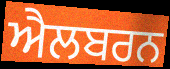
ਐਲਬਰਨ